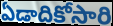
ఏడాదికోసారి